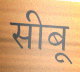
सीबू